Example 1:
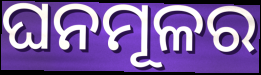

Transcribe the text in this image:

ଘନମୂଳର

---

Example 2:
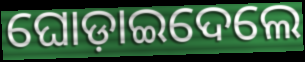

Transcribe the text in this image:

ଘୋଡ଼ାଇଦେଲେ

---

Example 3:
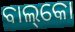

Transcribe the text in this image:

ବାଲ୍‌କୋ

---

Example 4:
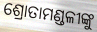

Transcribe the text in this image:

ଶ୍ରୋତାମଣ୍ଡଳୀଙ୍କୁ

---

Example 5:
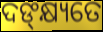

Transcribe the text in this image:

ଦଙ୍କ୍ଷ୍ଯତେ